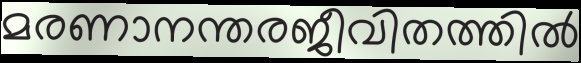
മരണാനന്തരജീവിതത്തിൽ